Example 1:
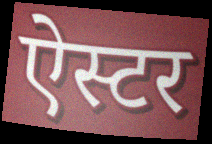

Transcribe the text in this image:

ऐस्टर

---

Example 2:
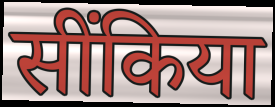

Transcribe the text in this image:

सींकिया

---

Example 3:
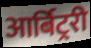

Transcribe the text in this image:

आर्बिट्ररी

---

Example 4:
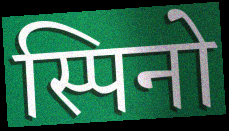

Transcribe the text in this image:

स्पिनो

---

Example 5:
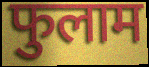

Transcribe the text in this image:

फुलाम